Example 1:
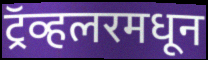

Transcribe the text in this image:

ट्रॅव्हलरमधून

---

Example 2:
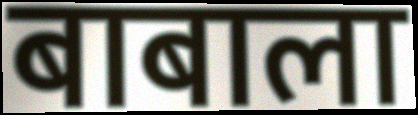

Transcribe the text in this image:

बाबाला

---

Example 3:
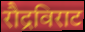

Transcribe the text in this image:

रौद्रविराट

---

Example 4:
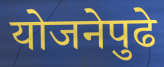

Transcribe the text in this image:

योजनेपुढे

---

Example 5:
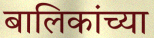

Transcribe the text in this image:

बालिकांच्या